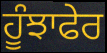
ਹੂੰਝਾਫੇਰ